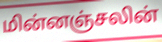
மின்னஞ்சலின்